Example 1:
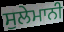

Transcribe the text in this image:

ਸੁਲੇਮਾਨੀ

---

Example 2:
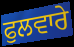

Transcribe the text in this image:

ਫੁਲਵਾਰੇ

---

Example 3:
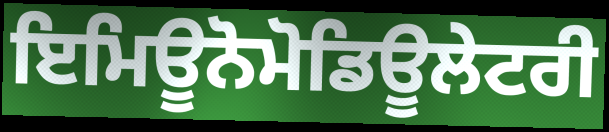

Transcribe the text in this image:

ਇਮਿਊਨੋਮੋਡਿਊਲੇਟਰੀ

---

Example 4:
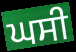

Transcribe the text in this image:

ਘਸੀ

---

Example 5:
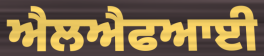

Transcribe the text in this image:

ਐਲਐਫਆਈ